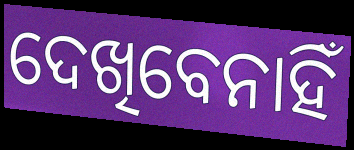
ଦେଖିବେନାହିଁ